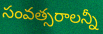
సంవత్సరాలన్నీ